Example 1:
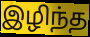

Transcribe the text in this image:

இழிந்த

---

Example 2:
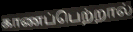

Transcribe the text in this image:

காணப்பெற்றால்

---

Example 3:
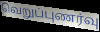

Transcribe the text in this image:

வெறுப்புணர்வு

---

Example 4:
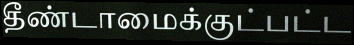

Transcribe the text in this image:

தீண்டாமைக்குட்பட்ட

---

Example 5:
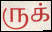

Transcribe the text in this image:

ருக்